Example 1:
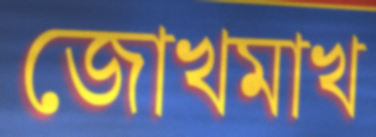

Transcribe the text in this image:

জোখমাখ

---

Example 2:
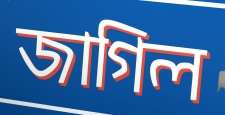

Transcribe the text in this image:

জাগিল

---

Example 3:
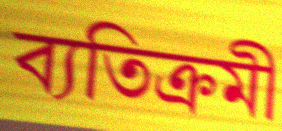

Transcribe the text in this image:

ব্যতিক্ৰমী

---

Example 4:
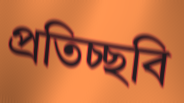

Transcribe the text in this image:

প্ৰতিচ্ছবি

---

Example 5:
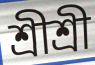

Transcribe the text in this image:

শ্ৰীশ্ৰী